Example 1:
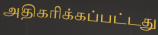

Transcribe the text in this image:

அதிகரிக்கப்பட்டது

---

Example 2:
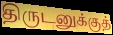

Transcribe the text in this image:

திருடனுக்குத்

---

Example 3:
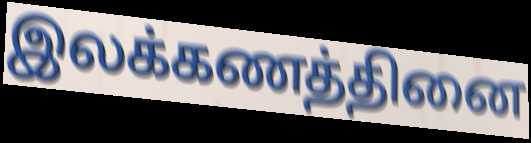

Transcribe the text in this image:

இலக்கணத்தினை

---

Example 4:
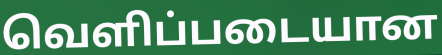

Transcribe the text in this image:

வெளிப்படையான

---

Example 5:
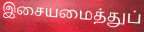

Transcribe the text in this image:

இசையமைத்துப்